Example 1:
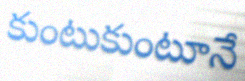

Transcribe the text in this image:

కుంటుకుంటూనే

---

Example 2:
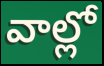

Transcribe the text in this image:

వాల్లో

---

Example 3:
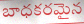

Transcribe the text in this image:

బాధకరమైన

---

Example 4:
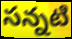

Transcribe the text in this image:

సన్నటి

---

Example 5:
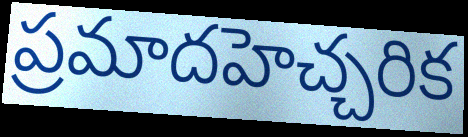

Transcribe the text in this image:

ప్రమాదహెచ్చరిక